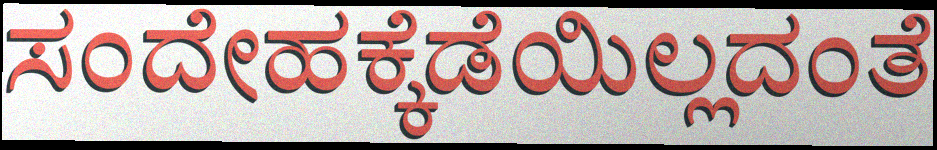
ಸಂದೇಹಕ್ಕೆಡೆಯಿಲ್ಲದಂತೆ